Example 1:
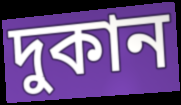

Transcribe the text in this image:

দুকান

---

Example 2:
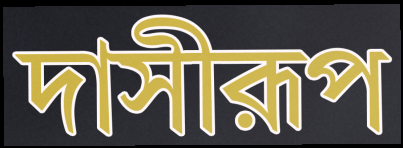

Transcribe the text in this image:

দাসীরূপ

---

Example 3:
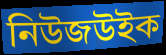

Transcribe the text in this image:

নিউজউইক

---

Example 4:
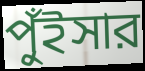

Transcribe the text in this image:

পুঁইসার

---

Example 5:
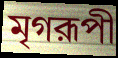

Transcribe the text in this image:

মৃগরূপী